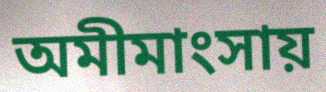
অমীমাংসায়